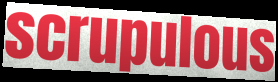
scrupulous